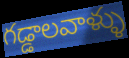
గడ్డాలవాళ్ళు